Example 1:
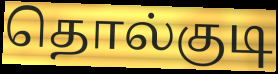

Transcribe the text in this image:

தொல்குடி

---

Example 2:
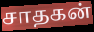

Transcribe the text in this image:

சாதகன்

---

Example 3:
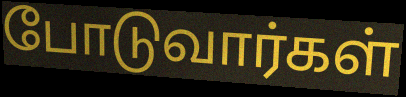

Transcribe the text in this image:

போடுவார்கள்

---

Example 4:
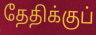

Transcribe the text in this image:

தேதிக்குப்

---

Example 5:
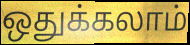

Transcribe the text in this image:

ஒதுக்கலாம்